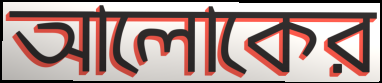
আলোকের